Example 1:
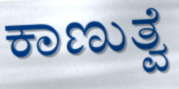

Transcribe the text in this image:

ಕಾಣುತ್ವೆ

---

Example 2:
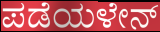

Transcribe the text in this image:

ಪಡೆಯಳೇನ್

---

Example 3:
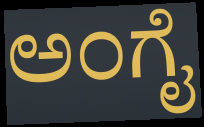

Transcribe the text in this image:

ಅಂಗೈ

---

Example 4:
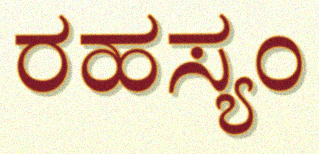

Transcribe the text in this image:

ರಹಸ್ಯಂ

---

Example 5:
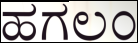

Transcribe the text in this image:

ಹಗಲಂ